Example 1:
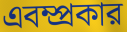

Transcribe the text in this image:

এবম্প্রকার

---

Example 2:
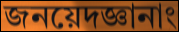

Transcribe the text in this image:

জনয়েদজ্ঞানাং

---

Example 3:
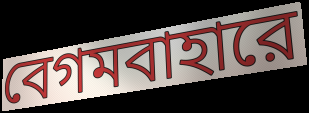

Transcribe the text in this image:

বেগমবাহারে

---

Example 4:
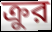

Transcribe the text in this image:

ক্রুর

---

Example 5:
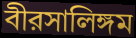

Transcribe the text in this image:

বীরসালিঙ্গম